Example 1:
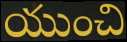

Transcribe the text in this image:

యుంచి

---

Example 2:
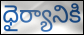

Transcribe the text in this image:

ధైర్యానికి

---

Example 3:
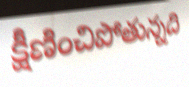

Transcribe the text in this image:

క్షీణించిపోతున్నది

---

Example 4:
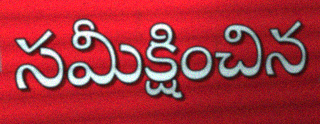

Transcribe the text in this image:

సమీక్షించిన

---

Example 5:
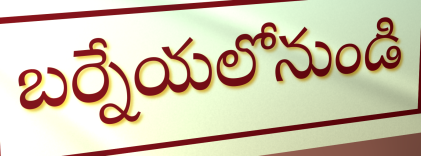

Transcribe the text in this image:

బర్నేయలోనుండి